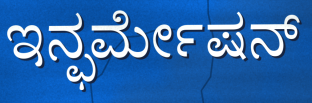
ಇನ್ಫರ್ಮೇಷನ್